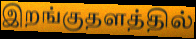
இறங்குதளத்தில்